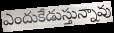
ఎందుకేడుస్తున్నావు